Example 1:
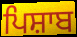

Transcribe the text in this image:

ਪਿਸ਼ਾਬ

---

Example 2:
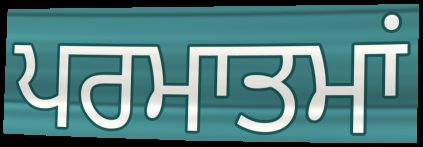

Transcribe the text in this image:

ਪਰਮਾਤਮਾਂ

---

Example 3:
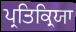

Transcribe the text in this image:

ਪ੍ਰਤਿਕ੍ਰਿਯਾ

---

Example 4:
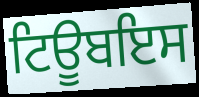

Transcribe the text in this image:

ਟਿਊਬਇਸ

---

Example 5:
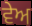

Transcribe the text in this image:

ਵੇਅ